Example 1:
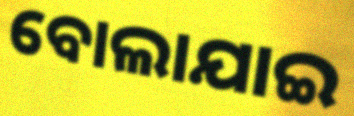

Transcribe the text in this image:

ବୋଲାଯାଇ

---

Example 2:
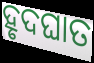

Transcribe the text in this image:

ହୃଦଘାତ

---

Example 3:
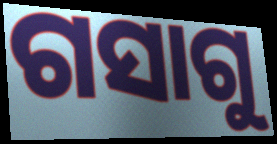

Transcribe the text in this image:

ଗସାଗୁ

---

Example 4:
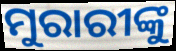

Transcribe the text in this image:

ମୁରାରୀଙ୍କୁ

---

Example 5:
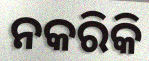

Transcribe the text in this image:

ନକରିକି